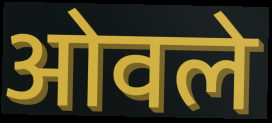
ओवले